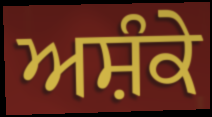
ਅਸ਼ੰਕੇ